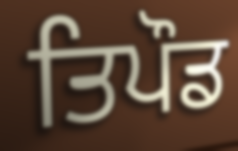
ਤਿਪੌਡ